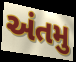
અંતમુ